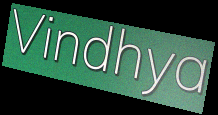
Vindhya